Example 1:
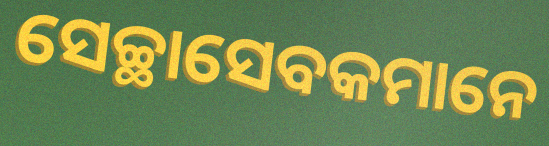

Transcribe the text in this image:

ସେଚ୍ଛାସେବକମାନେ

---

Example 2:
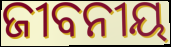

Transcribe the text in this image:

ଜୀବନୀୟ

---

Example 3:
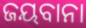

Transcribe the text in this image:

ଜୟବାନା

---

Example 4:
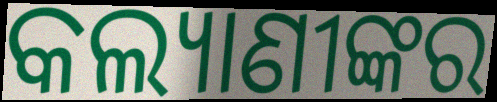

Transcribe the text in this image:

କଲ୍ୟାଣୀଙ୍କର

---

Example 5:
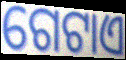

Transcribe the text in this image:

ଗେଟାଏ